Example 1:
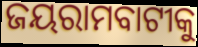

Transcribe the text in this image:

ଜୟରାମବାଟୀକୁ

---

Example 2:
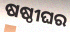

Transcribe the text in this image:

ଷଷ୍ଠୀଘର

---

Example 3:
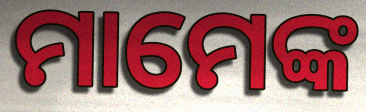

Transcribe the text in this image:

ମାମେଙ୍କ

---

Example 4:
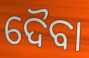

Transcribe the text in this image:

ଦୈବା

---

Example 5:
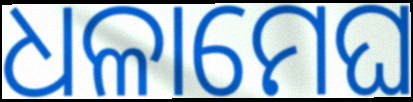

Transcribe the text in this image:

ଧଳାମେଘ